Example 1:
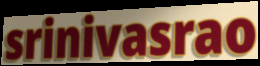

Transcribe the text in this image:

srinivasrao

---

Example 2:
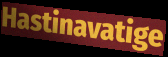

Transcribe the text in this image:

Hastinavatige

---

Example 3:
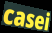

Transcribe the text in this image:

casei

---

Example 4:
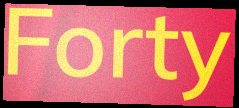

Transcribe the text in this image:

Forty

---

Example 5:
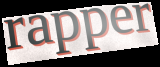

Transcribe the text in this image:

rapper